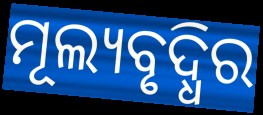
ମୂଲ୍ୟବୃଦ୍ଧିର